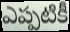
ఎప్పటికీ